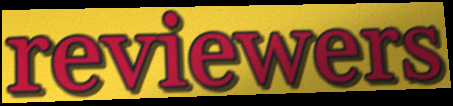
reviewers